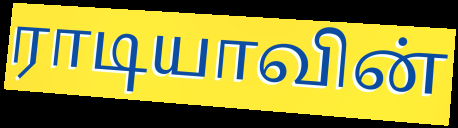
ராடியாவின்